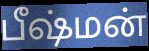
பீஷ்மன்